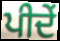
ਪੀਦੇਂ